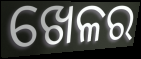
ଖେଳର